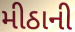
મીઠાની